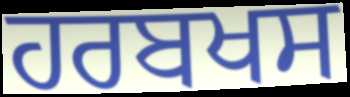
ਹਰਬਖਸ